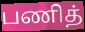
பணித்